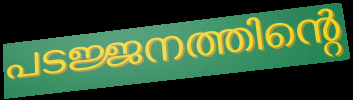
പടജ്ജനത്തിന്റെ